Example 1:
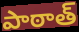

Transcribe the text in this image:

పాఠాత్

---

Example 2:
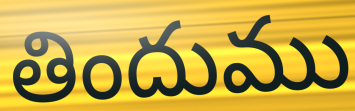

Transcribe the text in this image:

తిందుము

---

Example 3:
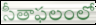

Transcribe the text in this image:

సీతాఫలంలో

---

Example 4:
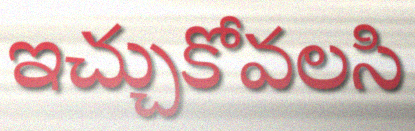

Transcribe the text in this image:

ఇచ్చుకోవలసి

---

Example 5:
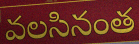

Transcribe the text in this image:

వలసినంత